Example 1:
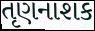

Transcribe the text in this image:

તૃણનાશક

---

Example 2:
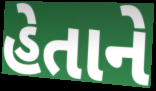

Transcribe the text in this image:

હેતાને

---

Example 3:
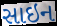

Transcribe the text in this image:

સાઇન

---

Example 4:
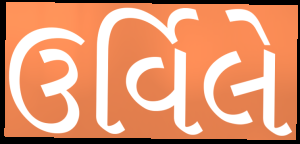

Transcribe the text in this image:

ઉર્વિલે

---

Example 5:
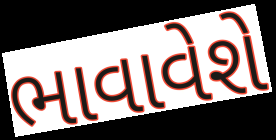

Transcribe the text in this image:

ભાવાવેશે